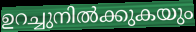
ഉറച്ചുനിൽക്കുകയും